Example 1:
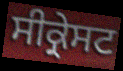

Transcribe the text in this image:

ਸੀਕ੍ਰੇਸਟ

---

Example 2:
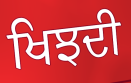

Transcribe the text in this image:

ਖਿਝਦੀ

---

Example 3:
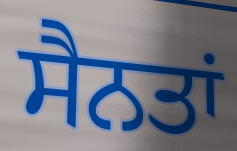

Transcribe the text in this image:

ਸੈਨਤਾਂ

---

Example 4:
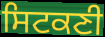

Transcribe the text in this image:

ਸਿਟਕਣੀ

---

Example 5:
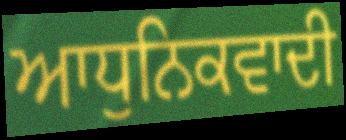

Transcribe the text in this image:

ਆਧੁਨਿਕਵਾਦੀ